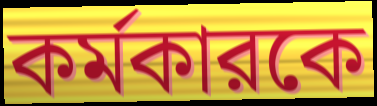
কর্মকারকে